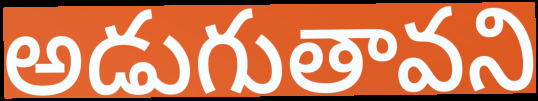
అడుగుతావని